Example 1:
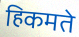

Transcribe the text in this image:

हिकमते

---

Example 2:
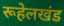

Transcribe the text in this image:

रूहेलखंड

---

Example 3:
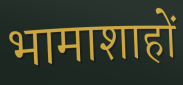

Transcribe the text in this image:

भामाशाहों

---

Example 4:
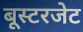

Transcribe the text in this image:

बूस्टरजेट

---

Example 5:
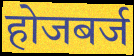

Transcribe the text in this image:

होजबर्ज